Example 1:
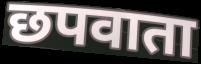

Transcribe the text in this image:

छपवाता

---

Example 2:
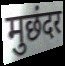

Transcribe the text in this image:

मुछंदर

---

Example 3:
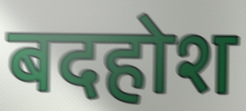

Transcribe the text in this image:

बदहोश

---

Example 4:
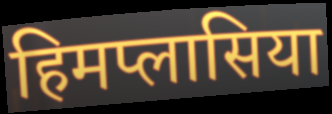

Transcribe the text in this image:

हिमप्लासिया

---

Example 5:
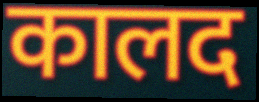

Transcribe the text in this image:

कालद